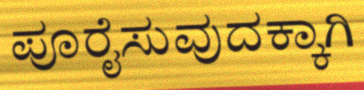
ಪೂರೈಸುವುದಕ್ಕಾಗಿ